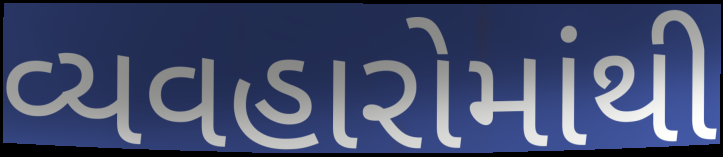
વ્યવહારોમાંથી